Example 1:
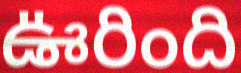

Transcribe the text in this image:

ఊరింది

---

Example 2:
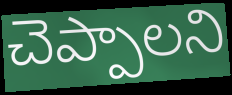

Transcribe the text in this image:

చెప్పాలని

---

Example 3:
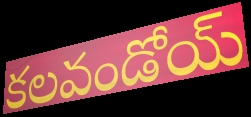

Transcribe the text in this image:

కలవండోయ్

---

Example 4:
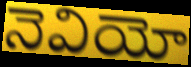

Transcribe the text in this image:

నెవియో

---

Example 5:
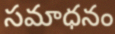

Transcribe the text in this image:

సమాధనం